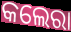
କଲେରା